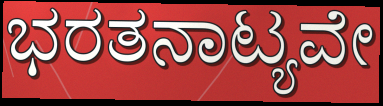
ಭರತನಾಟ್ಯವೇ